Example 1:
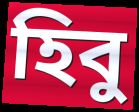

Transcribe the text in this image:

হিবু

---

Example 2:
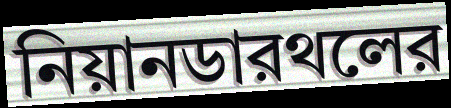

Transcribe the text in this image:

নিয়ানডারথলের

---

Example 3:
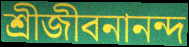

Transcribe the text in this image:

শ্রীজীবনানন্দ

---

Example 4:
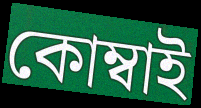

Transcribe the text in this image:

কোম্বাই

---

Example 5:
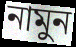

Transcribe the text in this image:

নামুন